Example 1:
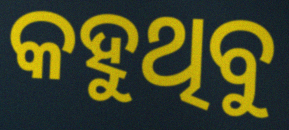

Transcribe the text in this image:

କହୁଥିବୁ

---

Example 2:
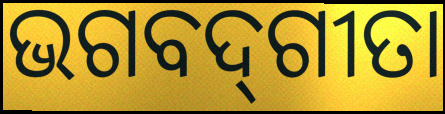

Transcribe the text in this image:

ଭଗବଦ୍‌ଗୀତା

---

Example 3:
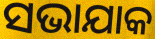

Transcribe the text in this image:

ସଭାଯାକ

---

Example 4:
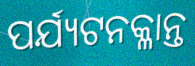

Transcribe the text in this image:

ପର୍ଯ୍ୟଟନକ୍ଳାନ୍ତ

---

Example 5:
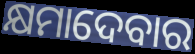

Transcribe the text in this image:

କ୍ଷମାଦେବାର